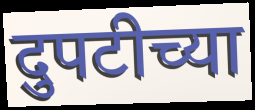
दुपटीच्या